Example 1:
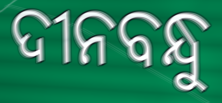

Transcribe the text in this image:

ଦୀନବନ୍ଧୁ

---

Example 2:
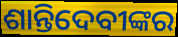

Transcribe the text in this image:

ଶାନ୍ତିଦେବୀଙ୍କର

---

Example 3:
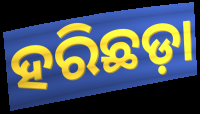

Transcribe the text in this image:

ହରିଛଡ଼ା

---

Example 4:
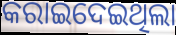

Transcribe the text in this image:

କରାଇଦେଇଥିଲା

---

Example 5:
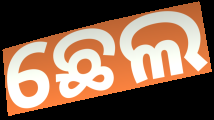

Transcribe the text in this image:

ଛେଲ